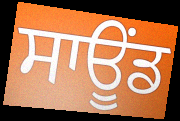
ਸਾਊਂਡ